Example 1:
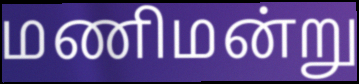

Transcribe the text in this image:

மணிமன்று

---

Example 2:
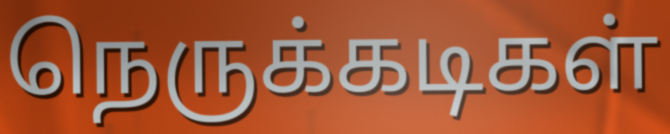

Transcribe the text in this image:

நெருக்கடிகள்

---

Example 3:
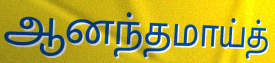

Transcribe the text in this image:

ஆனந்தமாய்த்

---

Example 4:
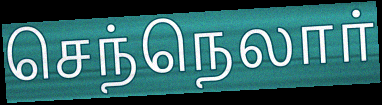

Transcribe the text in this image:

செந்நெலார்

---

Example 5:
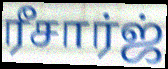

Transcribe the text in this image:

ரீசார்ஜ்